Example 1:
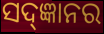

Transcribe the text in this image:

ସଦ୍‌ଜ୍ଞାନର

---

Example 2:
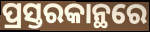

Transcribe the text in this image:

ପ୍ରସ୍ତରକାନ୍ଥରେ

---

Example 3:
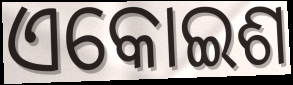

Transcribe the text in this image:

ଏକୋଇଶ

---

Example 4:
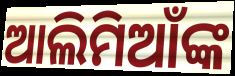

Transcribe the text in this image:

ଆଲିମିଆଁଙ୍କ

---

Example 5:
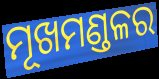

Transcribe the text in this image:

ମୂଖମଣ୍ଡଳର